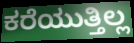
ಕರೆಯುತ್ತಿಲ್ಲ